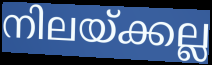
നിലയ്ക്കല്ല